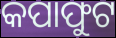
କପାଫୁଟ